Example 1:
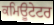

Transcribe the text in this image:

ਕਮਿਊਟੇਟਰ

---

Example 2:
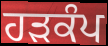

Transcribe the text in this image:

ਹੜਕੰਪ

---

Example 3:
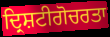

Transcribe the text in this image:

ਦ੍ਰਿਸ਼ਟੀਗੋਚਰਤਾ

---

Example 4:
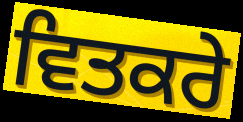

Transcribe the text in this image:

ਵਿਤਕਰੇ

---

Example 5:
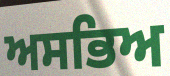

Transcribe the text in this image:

ਅਸਭਿਅ